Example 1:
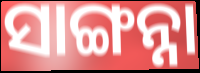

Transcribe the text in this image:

ସାଙ୍ଗନ୍ନା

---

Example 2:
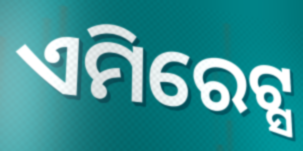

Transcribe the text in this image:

ଏମିରେଟ୍ସ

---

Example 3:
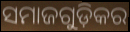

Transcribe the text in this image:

ସମାଜଗୁଡ଼ିକର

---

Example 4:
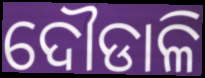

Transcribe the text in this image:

ଦୌଡାଳି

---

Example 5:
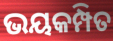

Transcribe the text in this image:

ଭୟକମ୍ପିତ